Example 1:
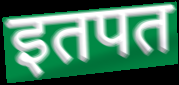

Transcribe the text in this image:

इतपत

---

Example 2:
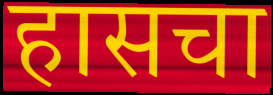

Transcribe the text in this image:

हासचा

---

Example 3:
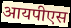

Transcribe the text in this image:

आयपीएस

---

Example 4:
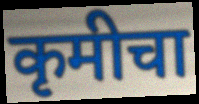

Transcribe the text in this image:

कृमीचा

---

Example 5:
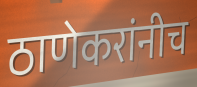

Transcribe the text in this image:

ठाणेकरांनीच